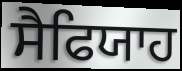
ਸੈਫਿਯਾਹ